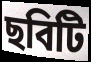
ছবিটি